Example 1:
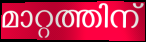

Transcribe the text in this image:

മാറ്റത്തിന്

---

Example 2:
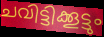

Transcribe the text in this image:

ചവിട്ടിക്കൂട്ടും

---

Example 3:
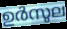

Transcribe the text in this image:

ഉർസുല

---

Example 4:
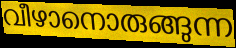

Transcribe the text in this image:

വീഴാനൊരുങ്ങുന്ന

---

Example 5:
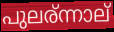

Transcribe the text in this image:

പുലര്ന്നാല്